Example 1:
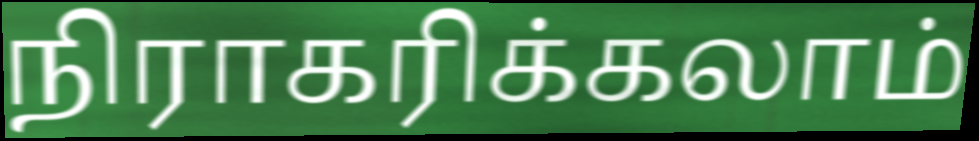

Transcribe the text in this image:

நிராகரிக்கலாம்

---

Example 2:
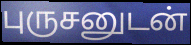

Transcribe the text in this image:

புருசனுடன்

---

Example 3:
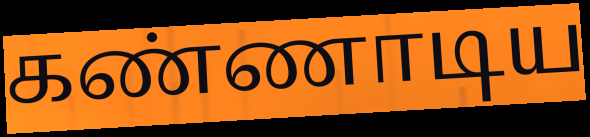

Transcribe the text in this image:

கண்ணாடிய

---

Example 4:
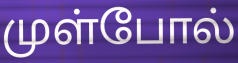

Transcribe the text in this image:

முள்போல்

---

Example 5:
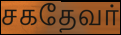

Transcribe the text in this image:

சகதேவர்